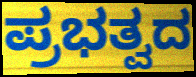
ಪ್ರಭತ್ವದ